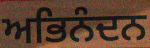
ਅਭਿਨੰਦਨ